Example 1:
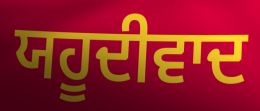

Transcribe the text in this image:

ਯਹੂਦੀਵਾਦ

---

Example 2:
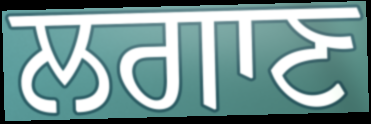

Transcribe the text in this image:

ਲਗਾਣ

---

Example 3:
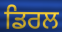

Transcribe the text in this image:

ਡਿਰਲ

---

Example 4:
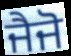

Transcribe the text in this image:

ਜੈਜੋ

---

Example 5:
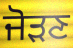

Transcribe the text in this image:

ਜੋੜਣ